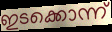
ഇടക്കൊന്ന്